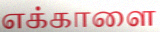
எக்காளை